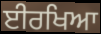
ਈਰਖਿਆ